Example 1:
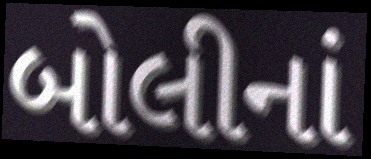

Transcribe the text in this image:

બોલીનાં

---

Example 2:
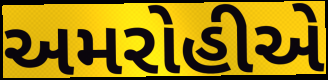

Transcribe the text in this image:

અમરોહીએ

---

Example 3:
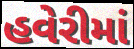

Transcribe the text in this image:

હવેરીમાં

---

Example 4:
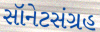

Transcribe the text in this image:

સૉનેટસંગ્રહ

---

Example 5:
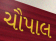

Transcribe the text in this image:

ચૌપાલ